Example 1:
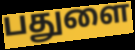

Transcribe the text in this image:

பதுளை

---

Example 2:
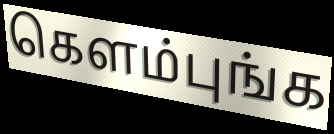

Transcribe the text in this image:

கெளம்புங்க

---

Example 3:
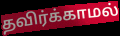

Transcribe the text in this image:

தவிர்க்காமல்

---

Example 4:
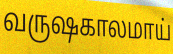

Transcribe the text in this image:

வருஷகாலமாய்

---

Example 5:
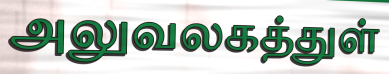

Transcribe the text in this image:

அலுவலகத்துள்